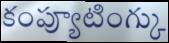
కంప్యూటింగ్కు